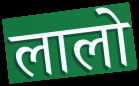
लालो